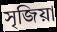
সৃজিয়া